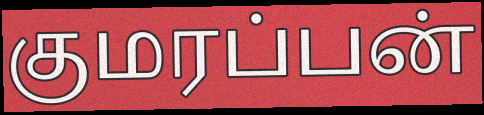
குமரப்பன்